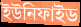
ইউনিফাইড